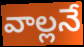
వాల్లనే